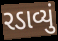
રડાવ્યું